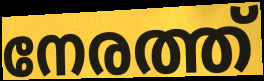
നേരത്ത്